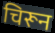
चिरून